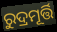
ରୁଦ୍ରମୂର୍ତ୍ତି